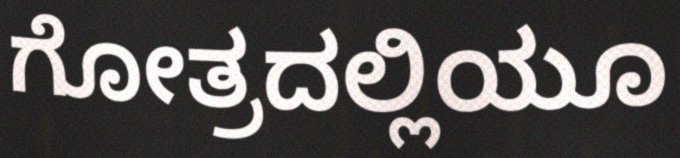
ಗೋತ್ರದಲ್ಲಿಯೂ